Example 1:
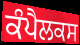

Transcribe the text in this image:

ਕੰਪੈਲਕਸ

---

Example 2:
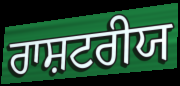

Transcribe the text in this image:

ਰਾਸ਼ਟਰੀਯ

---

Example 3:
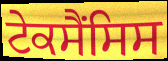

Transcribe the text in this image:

ਟੇਕਸੈਂਸਿਸ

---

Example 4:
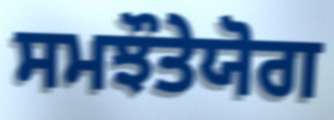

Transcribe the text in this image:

ਸਮਝੌਤੇਯੋਗ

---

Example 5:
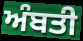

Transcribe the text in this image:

ਅੰਬਤੀ